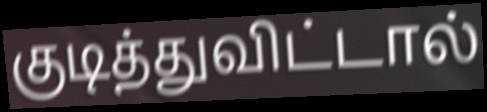
குடித்துவிட்டால்